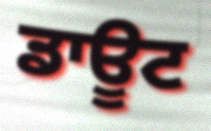
ਡਾਊਟ